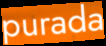
purada